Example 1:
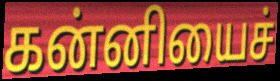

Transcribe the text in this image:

கன்னியைச்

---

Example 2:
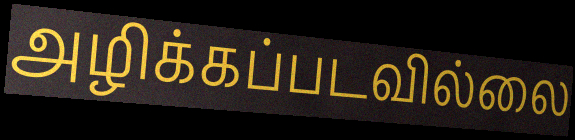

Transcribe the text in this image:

அழிக்கப்படவில்லை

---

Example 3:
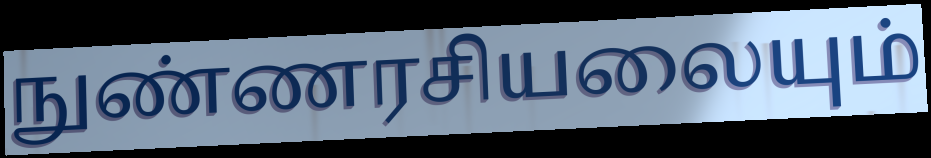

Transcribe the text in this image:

நுண்ணரசியலையும்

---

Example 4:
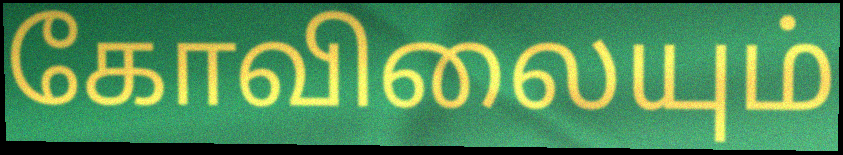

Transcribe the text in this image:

கோவிலையும்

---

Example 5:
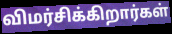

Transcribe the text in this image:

விமர்சிக்கிறார்கள்